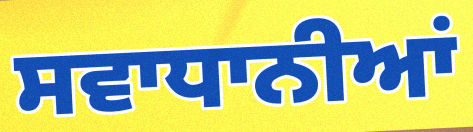
ਸਵਾਧਾਨੀਆਂ